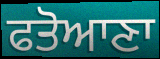
ਫਤੋਆਣਾ